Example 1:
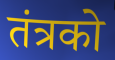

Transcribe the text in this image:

तंत्रको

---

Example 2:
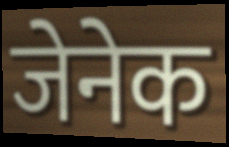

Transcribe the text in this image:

जेनेक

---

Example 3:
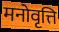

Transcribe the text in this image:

मनोवृत्ति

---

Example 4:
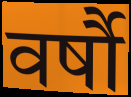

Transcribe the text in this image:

वर्षौ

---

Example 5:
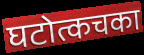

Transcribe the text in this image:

घटोत्कचका